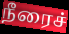
நீரைச்